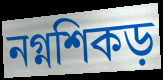
নগ্নশিকড়